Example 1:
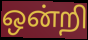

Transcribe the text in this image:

ஒன்றி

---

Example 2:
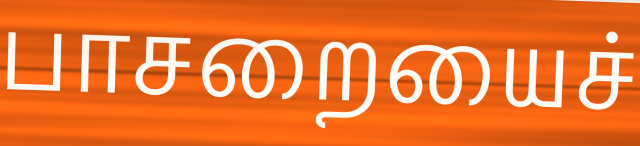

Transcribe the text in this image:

பாசறையைச்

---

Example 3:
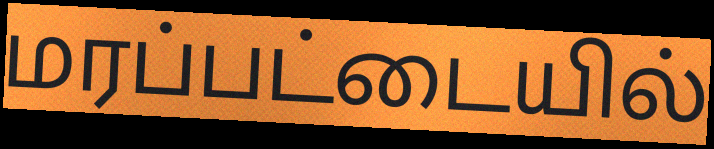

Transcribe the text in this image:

மரப்பட்டையில்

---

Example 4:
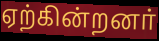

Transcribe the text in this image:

ஏற்கின்றனர்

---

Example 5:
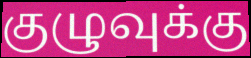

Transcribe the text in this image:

குழுவுக்கு